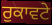
ਰੁਕਾਵਟੇ